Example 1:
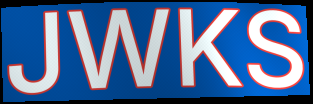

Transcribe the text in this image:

JWKS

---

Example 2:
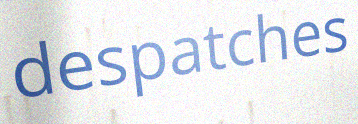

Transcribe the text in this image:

despatches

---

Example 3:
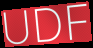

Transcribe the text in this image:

UDF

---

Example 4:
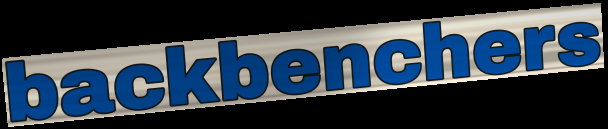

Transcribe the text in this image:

backbenchers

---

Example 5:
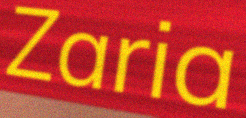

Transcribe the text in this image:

Zaria